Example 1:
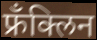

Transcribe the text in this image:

फ्रँक्लिन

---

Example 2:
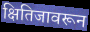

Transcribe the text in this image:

क्षितिजावरून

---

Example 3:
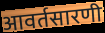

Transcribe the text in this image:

आवर्तसारणी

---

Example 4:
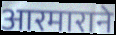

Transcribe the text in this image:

आरमाराने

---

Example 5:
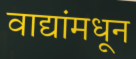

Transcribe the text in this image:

वाद्यांमधून